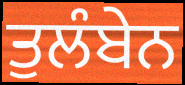
ਤੁਲੰਬੇਨ